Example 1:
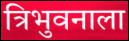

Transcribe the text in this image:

त्रिभुवनाला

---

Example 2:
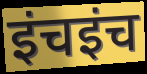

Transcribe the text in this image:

इंचइंच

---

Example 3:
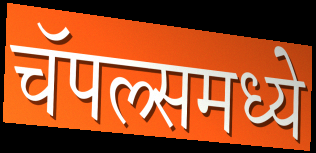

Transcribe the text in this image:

चॅपल्समध्ये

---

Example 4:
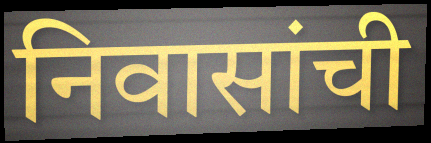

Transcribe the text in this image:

निवासांची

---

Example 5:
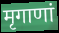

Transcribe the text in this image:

मृगाणां